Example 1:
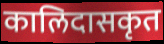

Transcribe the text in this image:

कालिदासकृत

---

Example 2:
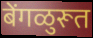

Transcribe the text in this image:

बेंगळुरूत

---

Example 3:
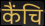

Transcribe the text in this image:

कैंचि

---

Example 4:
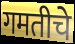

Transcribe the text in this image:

गमतीचे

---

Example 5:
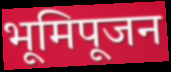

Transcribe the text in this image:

भूमिपूजन